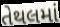
તેથલમાં